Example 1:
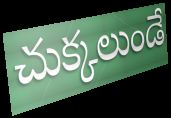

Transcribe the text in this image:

చుక్కలుండే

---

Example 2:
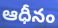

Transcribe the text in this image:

ఆధీనం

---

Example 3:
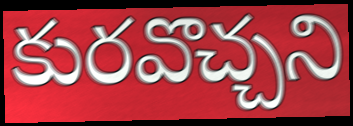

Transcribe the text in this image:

కురవొచ్చని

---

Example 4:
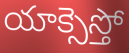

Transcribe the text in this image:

యాక్సెస్తో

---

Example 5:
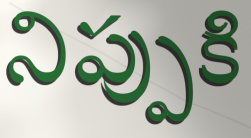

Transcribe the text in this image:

నిప్పుకి